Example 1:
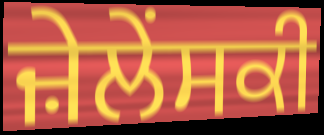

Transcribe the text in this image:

ਜ਼ੇਲੇਂਸਕੀ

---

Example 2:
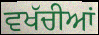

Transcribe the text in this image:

ਵਖੱਚੀਆਂ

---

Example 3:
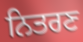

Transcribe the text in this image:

ਨਿਤਰਣ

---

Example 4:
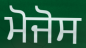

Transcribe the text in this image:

ਮੋਜੋਸ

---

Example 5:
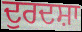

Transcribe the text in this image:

ਦੁਰਦਸ਼ਾ